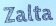
Zalta